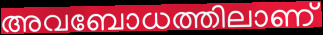
അവബോധത്തിലാണ്